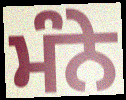
ਮੰਨੇ